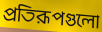
প্রতিরূপগুলো